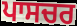
ਪਾਸਚਰ